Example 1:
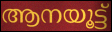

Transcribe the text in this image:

ആനയൂട്ട്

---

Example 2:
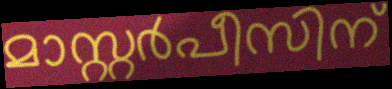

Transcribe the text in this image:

മാസ്റ്റർപീസിന്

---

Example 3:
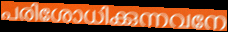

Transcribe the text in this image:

പരിശോധിക്കുന്നവനേ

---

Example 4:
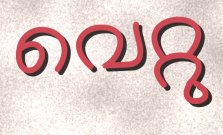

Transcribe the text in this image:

വെറ്റു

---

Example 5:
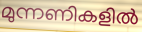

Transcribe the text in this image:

മുന്നണികളിൽ